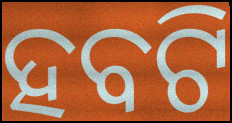
ହବଟି